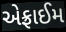
એફ્રાઈમ